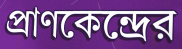
প্রাণকেন্দ্রের